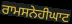
ਰਾਮਸਨੇਹੀਘਾਟ